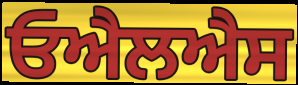
ਓਐਲਐਸ